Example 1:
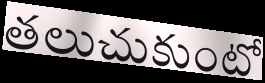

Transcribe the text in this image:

తలుచుకుంటో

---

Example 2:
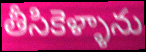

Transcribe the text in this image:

తీసికెళ్ళాను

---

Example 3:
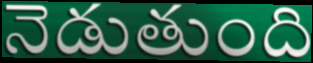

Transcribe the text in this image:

నెడుతుంది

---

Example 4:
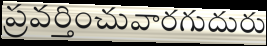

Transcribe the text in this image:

ప్రవర్తించువారగుదురు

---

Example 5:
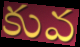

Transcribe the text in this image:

కువ